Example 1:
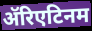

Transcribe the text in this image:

ॲरिएटिनम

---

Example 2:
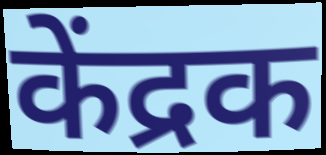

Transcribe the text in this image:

केंद्रक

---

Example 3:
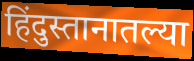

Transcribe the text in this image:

हिंदुस्तानातल्या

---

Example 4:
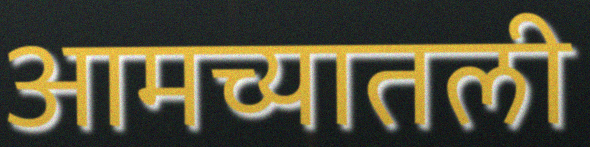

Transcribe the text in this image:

आमच्यातली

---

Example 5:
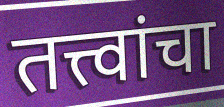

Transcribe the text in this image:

तत्त्वांचा